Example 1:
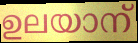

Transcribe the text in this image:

ഉലയാന്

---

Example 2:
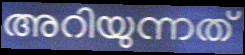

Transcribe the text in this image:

അറിയുന്നത്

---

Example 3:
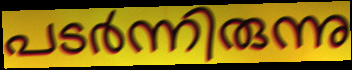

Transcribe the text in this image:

പടർന്നിരുന്നു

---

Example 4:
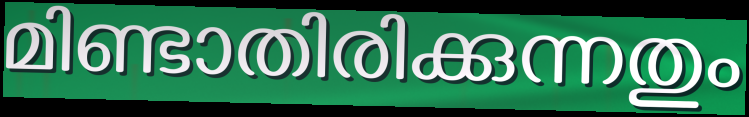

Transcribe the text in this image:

മിണ്ടാതിരിക്കുന്നതും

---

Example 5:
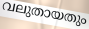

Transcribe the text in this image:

വലുതായതും